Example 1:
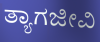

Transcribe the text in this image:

ತ್ಯಾಗಜೀವಿ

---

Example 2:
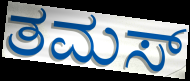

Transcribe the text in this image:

ತಮಸ್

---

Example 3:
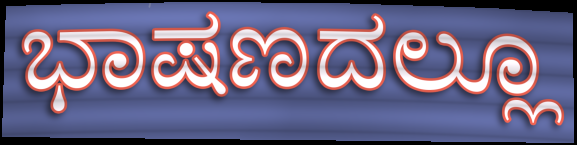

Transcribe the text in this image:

ಭಾಷಣದಲ್ಲೂ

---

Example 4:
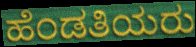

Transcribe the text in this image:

ಹೆಂಡತಿಯರು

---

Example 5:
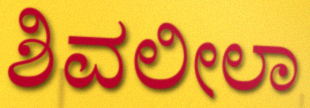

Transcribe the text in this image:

ಶಿವಲೀಲಾ